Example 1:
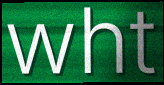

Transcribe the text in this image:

wht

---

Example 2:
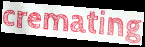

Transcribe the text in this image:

cremating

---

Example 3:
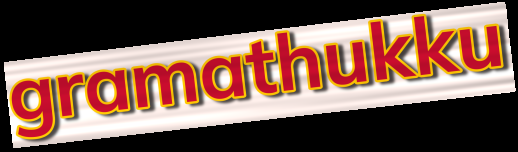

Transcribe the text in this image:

gramathukku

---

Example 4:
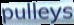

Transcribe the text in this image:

pulleys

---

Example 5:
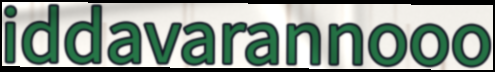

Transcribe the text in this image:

iddavarannooo